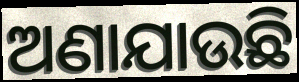
ଅଣାଯାଉଛି